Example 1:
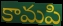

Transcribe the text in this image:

కామపి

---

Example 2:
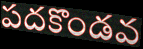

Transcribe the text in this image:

పదకొండవ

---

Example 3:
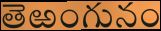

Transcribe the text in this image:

తెఱంగునం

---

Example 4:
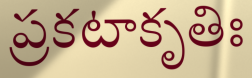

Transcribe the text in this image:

ప్రకటాకృతిః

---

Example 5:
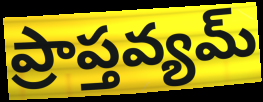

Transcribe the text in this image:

ప్రాప్తవ్యమ్